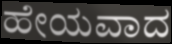
ಹೇಯವಾದ